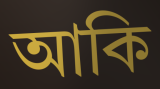
আকি